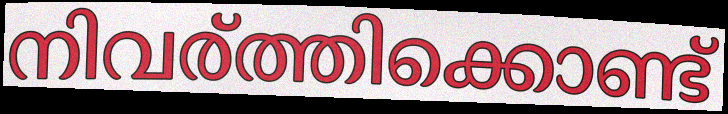
നിവര്ത്തിക്കൊണ്ട്